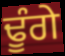
ਢੂੰਗੇ